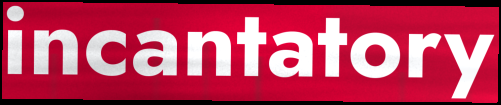
incantatory